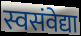
स्वसंवेद्या